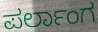
ಪರ್ಲಾಂಗ